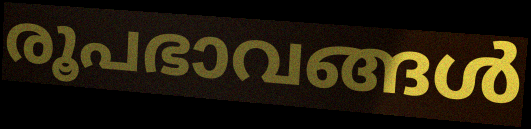
രൂപഭാവങ്ങൾ